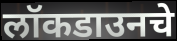
लॉकडाउनचे